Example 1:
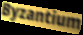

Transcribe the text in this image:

Byzantium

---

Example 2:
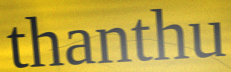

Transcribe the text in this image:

thanthu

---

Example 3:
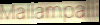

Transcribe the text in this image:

Mallampalli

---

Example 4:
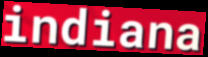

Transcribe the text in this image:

indiana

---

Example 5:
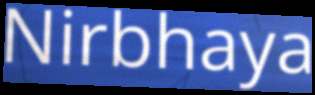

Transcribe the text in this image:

Nirbhaya